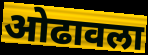
ओढावला